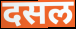
दसल